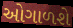
ઓગાળશે